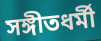
সঙ্গীতধর্মী